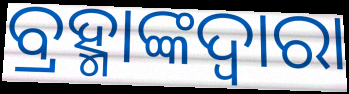
ବ୍ରହ୍ମାଙ୍କଦ୍ୱାରା